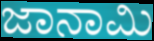
ಜಾನಾಮಿ